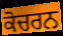
ਕੋਚਰਨ